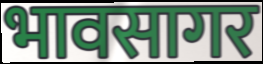
भावसागर